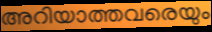
അറിയാത്തവരെയും